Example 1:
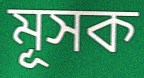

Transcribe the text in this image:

মূসক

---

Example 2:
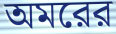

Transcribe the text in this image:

অমরের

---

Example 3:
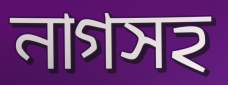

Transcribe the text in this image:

নাগসহ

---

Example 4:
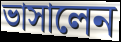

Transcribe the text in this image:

ভাসালেন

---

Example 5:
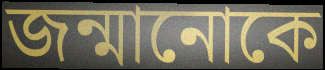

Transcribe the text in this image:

জন্মানোকে